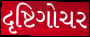
દૃષ્ટિગોચર